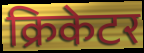
क्रिकेटर